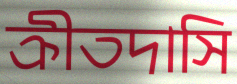
ক্রীতদাসি